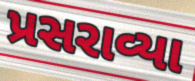
પ્રસરાવ્યા